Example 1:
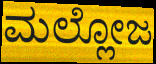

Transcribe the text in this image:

ಮಲ್ಲೋಜ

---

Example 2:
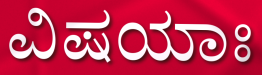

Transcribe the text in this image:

ವಿಷಯಾಃ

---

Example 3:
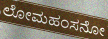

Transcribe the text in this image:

ಲೋಮಹಂಸನೋ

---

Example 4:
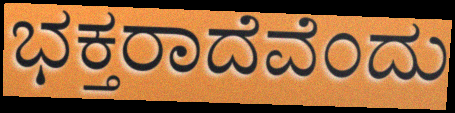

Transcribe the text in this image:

ಭಕ್ತರಾದೆವೆಂದು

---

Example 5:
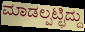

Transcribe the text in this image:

ಮಾಡಲ್ಪಟ್ಟಿದ್ದು